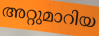
അറ്റുമാറിയ